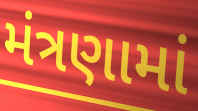
મંત્રણામાં